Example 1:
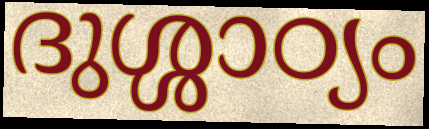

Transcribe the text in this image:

ദുശ്ശാഠ്യം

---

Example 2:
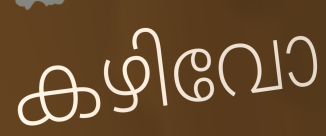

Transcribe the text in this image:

കഴിവോ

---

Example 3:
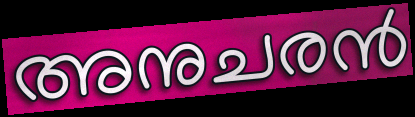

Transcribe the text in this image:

അനുചരൻ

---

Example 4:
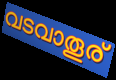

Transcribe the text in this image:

വടവാതൂര്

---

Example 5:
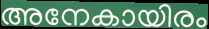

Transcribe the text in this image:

അനേകായിരം